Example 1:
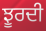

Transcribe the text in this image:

ਝੂਰਦੀ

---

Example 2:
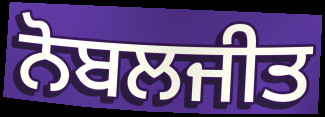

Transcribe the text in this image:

ਨੋਬਲਜੀਤ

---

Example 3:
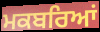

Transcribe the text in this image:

ਮਕਬਰਿਆਂ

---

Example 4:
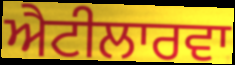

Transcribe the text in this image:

ਐਟੀਲਾਰਵਾ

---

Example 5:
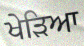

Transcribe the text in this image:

ਖੇੜਿਆ